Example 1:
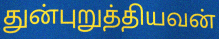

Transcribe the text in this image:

துன்புறுத்தியவன்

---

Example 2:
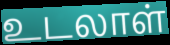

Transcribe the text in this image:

உடலாள்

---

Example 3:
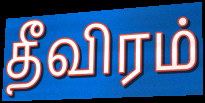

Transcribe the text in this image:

தீவிரம்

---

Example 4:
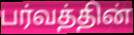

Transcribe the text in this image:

பர்வத்தின்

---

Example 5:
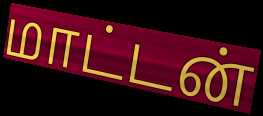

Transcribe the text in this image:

மாட்டன்